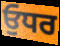
ਓੁਧਰ